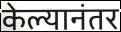
केल्यानंतर